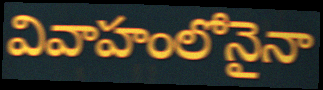
వివాహంలోనైనా